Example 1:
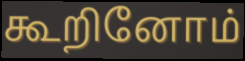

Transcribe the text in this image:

கூறினோம்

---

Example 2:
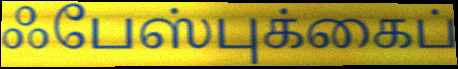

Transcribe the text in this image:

ஃபேஸ்புக்கைப்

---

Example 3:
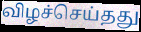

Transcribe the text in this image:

விழச்செய்தது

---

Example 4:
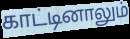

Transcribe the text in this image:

காட்டினாலும்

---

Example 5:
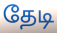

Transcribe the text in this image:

தேடி